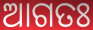
ଆଗତଃ